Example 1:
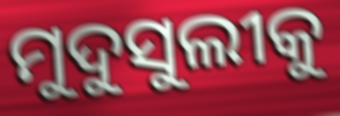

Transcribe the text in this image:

ମୁଦୁସୁଲୀକୁ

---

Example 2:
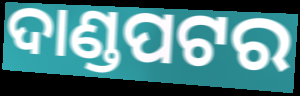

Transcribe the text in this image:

ଦାଣ୍ଡପଟର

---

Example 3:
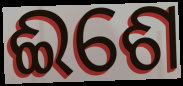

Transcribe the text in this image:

ଈଶେ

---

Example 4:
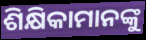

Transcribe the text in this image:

ଶିକ୍ଷିକାମାନଙ୍କୁ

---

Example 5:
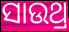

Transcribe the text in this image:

ସାଉଥ୍ର